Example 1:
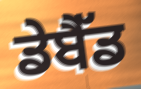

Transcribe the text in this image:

ਡੇਬੈੱਡ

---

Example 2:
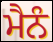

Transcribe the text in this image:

ਮੈਨੰ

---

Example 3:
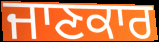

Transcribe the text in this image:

ਜਾਣਕਾਰ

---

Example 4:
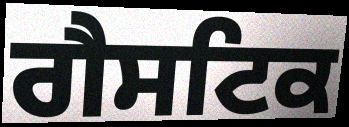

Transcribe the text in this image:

ਗੈਸਟਿਕ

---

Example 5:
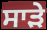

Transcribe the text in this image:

ਸਾੜੇ